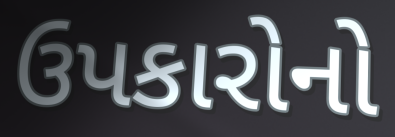
ઉપકારોનો